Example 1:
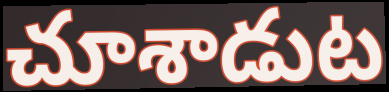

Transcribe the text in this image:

చూశాడుట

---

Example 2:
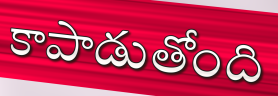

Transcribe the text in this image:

కాపాడుతోంది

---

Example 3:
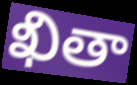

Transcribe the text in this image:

ఖితా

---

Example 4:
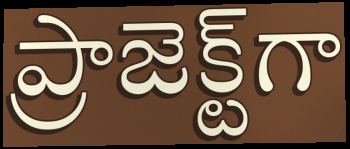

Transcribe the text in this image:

ప్రాజెక్ట్‌గా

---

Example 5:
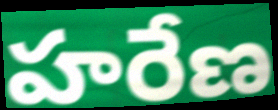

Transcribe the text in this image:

హరేణ